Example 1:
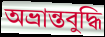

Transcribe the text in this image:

অভ্রান্তবুদ্ধি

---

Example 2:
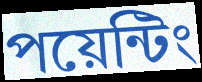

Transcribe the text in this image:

পয়েন্টিং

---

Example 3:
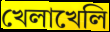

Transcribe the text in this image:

খেলাখেলি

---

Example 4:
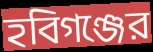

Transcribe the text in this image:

হবিগঞ্জের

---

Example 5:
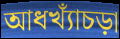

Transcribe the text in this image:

আধখ্যাঁচড়া